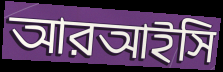
আরআইসি